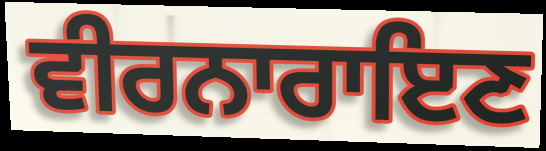
ਵੀਰਨਾਰਾਇਣ